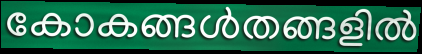
കോകങ്ങൾതങ്ങളിൽ